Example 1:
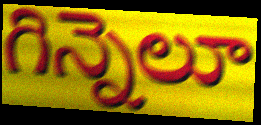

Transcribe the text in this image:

గిన్నెలూ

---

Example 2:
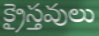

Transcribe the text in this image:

క్రైస్తవులు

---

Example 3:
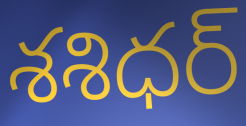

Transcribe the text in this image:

శశిధర్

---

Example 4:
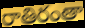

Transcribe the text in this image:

రాతిరంతా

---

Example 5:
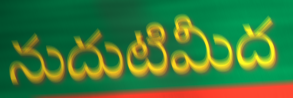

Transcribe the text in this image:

నుదుటిమీద